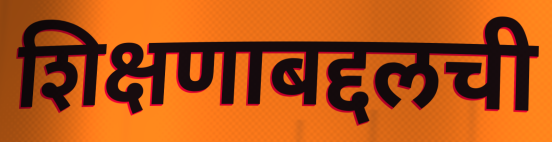
शिक्षणाबद्दलची